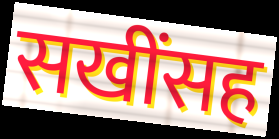
सखींसह